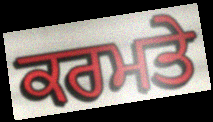
ਕਰਮਤੇ